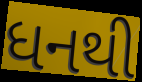
ધનથી